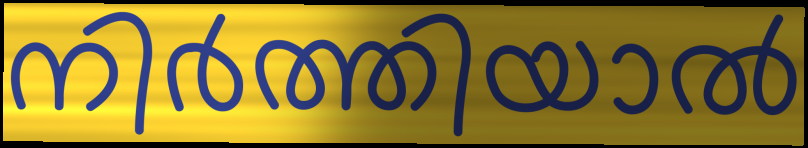
നിർത്തിയാൽ